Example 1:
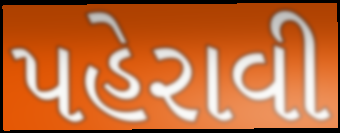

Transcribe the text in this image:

પહેરાવી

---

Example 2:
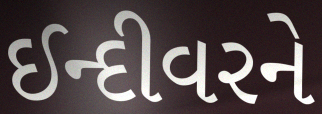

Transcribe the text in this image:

ઈન્દીવરને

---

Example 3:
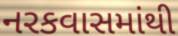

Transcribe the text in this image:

નરકવાસમાંથી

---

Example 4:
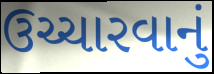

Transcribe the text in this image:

ઉચ્ચારવાનું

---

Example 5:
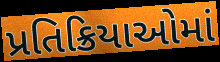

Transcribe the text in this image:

પ્રતિક્રિયાઓમાં